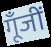
गूँजीं